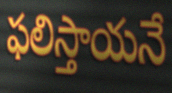
ఫలిస్తాయనే